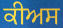
ਕੀਅਸ